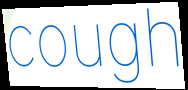
cough